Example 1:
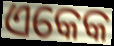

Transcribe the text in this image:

ଏକେକ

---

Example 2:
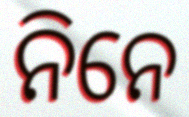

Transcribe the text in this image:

ନିନେ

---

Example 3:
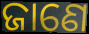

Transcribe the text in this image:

ଜାଣେ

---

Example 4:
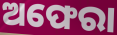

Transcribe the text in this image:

ଅଫେରା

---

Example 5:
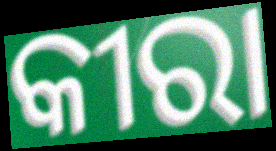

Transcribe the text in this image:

କୀରା